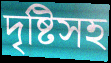
দৃষ্টিসহ